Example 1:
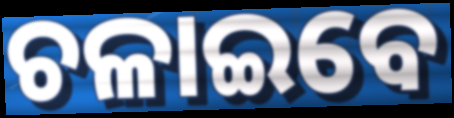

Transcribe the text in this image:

ଚଳାଇବେ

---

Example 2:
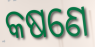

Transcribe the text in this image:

କଷଣେ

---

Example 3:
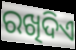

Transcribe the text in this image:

ରଖିଦିଏ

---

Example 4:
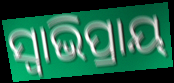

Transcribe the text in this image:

ସ୍ଵାଭିପ୍ରାୟ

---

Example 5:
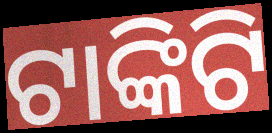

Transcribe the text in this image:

ଟାଙ୍କିଟି